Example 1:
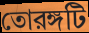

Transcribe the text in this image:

তোরঙ্গটি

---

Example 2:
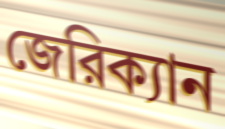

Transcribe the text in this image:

জেরিক্যান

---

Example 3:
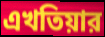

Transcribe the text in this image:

এখতিয়ার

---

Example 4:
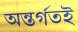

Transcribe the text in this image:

অন্তর্গতই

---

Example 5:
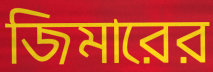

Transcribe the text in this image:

জিমারের